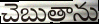
చెబుతాను